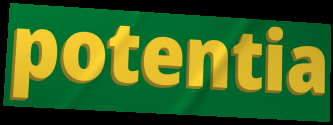
potentia